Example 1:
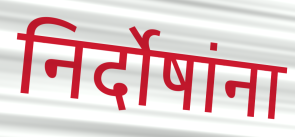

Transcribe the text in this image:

निर्दोषांना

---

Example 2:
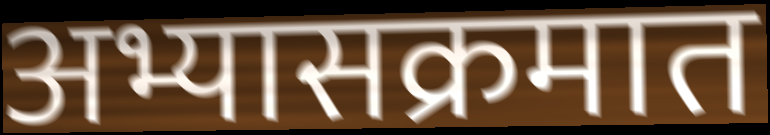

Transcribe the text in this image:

अभ्यासक्रमात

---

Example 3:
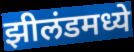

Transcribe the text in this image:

झीलंडमध्ये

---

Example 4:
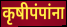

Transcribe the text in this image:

कृषीपंपांना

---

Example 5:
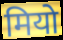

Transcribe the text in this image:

मियो